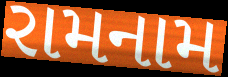
રામનામ